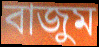
বাজুম